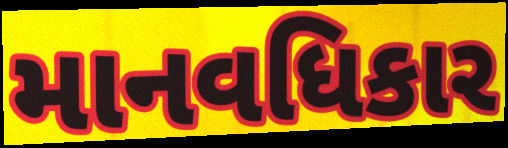
માનવધિકાર